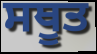
ਸਥੂਤ